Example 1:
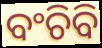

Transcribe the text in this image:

ବଂଚିବି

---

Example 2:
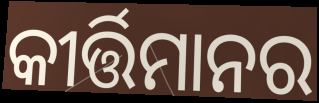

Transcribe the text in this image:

କୀର୍ତ୍ତିମାନର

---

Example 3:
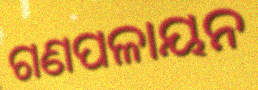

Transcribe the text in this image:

ଗଣପଳାୟନ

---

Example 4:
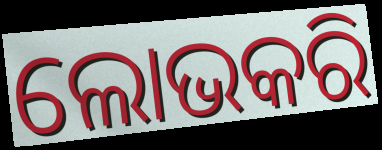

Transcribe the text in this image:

ଲୋଭକରି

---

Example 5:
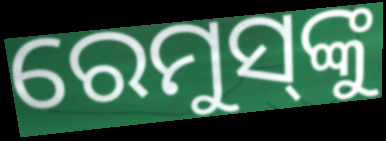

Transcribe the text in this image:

ରେମୁସ୍‌ଙ୍କୁ